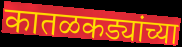
कातळकड्यांच्या